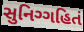
સુનિગ્ગહિતં